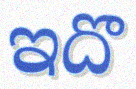
ఇదొ